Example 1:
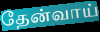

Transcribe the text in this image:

தேன்வாய்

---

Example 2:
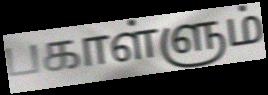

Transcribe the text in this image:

பகாள்ளும்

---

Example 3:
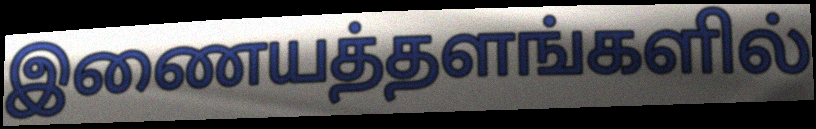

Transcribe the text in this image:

இணையத்தளங்களில்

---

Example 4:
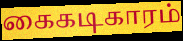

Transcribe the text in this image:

கைகடிகாரம்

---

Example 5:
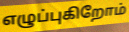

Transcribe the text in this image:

எழுப்புகிறோம்